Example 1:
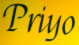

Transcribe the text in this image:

Priyo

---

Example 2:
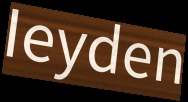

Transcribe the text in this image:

Ieyden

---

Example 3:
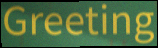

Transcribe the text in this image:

Greeting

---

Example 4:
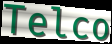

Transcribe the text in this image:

Telco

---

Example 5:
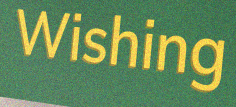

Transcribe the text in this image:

Wishing